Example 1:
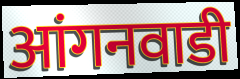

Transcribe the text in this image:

आंगनवाडी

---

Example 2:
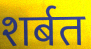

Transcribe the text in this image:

शर्बत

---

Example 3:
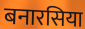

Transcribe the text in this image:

बनारसिया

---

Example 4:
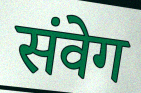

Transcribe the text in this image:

संवेग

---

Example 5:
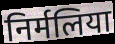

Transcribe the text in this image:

निर्मलिया